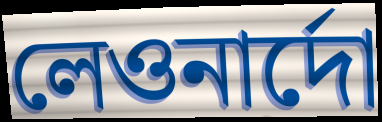
লেওনার্দো